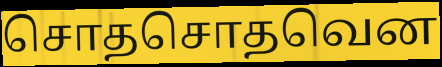
சொதசொதவென